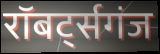
रॉबर्ट्सगंज